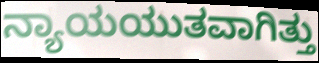
ನ್ಯಾಯಯುತವಾಗಿತ್ತು